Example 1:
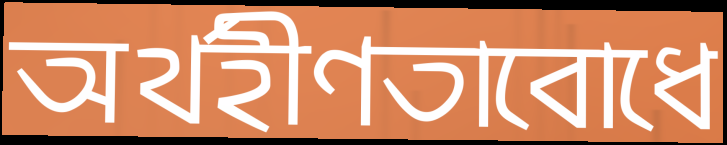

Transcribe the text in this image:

অর্থহীণতাবোধে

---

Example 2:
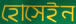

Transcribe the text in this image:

হোসেইন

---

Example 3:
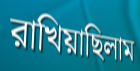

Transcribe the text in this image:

রাখিয়াছিলাম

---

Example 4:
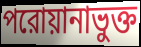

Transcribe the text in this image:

পরোয়ানাভুক্ত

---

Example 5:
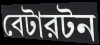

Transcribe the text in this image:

বেটারটন